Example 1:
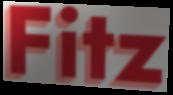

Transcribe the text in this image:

Fitz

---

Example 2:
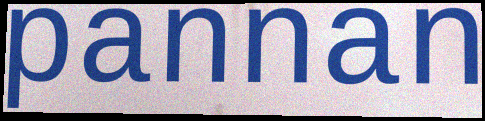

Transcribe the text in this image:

pannan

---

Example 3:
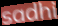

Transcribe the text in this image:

sadhi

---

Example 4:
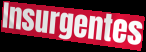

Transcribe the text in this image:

Insurgentes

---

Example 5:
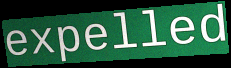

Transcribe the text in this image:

expelled